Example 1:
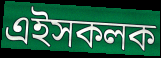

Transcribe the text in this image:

এইসকলক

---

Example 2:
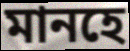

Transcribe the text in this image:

মানহে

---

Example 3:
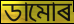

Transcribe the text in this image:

ডামোৰ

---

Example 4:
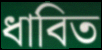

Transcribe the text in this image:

ধাবিত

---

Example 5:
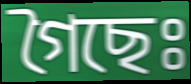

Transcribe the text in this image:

গৈছেঃ